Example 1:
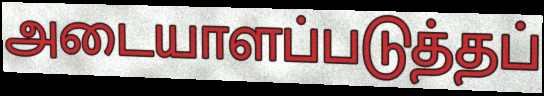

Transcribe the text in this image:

அடையாளப்படுத்தப்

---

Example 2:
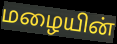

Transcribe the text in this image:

மழையின்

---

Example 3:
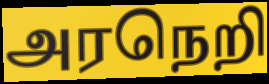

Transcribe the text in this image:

அரநெறி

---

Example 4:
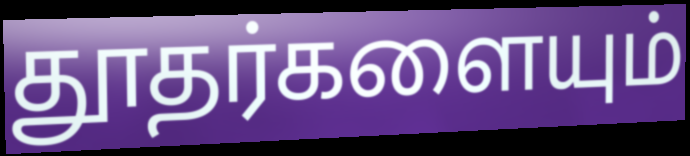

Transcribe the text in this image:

தூதர்களையும்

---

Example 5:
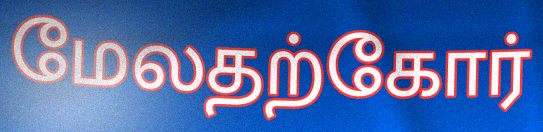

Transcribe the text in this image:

மேலதற்கோர்